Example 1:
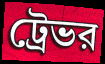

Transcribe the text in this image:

ট্রেভর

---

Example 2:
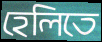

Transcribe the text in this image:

হেলিতে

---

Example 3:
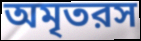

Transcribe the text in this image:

অমৃতরস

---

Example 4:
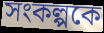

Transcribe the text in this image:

সংকল্পকে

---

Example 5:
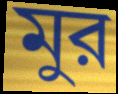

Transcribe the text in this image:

মুর